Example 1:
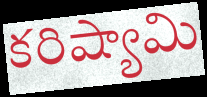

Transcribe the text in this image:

కరిష్యామి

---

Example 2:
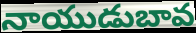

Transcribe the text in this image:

నాయుడుబావ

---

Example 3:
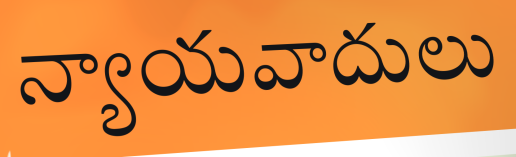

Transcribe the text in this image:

న్యాయవాదులు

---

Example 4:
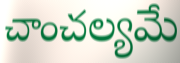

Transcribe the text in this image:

చాంచల్యమే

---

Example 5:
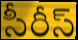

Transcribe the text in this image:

సీరీస్